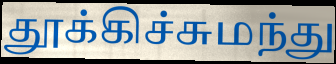
தூக்கிச்சுமந்து